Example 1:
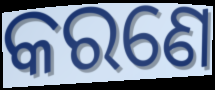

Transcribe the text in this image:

କରଣେ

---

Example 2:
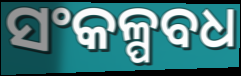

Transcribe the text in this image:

ସଂକଳ୍ପବଧ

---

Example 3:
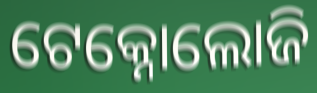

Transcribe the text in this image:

ଟେକ୍ନୋଲୋଜି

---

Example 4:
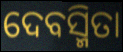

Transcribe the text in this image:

ଦେବସ୍ମିତା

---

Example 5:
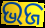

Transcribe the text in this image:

ଭଜ